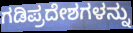
ಗಡಿಪ್ರದೇಶಗಳನ್ನು